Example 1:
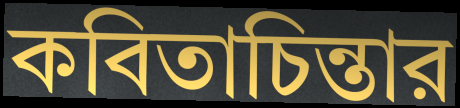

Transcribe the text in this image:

কবিতাচিন্তার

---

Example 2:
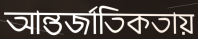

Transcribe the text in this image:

আন্তর্জাতিকতায়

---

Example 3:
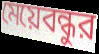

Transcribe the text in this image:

মেয়েবন্ধুর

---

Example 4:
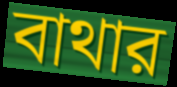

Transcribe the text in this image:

বাথার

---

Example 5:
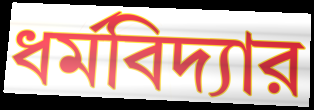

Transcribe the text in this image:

ধর্মবিদ্যার